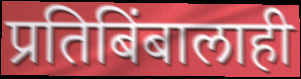
प्रतिबिंबालाही